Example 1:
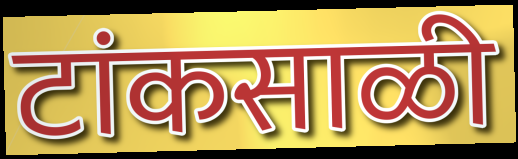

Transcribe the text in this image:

टांकसाळी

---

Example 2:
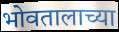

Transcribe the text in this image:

भोवतालाच्या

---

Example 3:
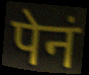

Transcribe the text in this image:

पेनं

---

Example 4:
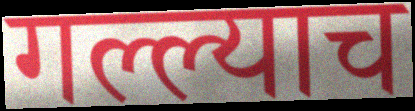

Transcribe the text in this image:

गल्ल्याच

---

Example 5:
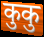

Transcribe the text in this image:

कुकु